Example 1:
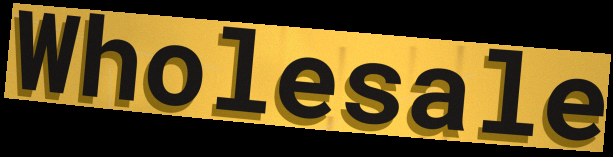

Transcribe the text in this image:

Wholesale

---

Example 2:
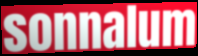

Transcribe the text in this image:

sonnalum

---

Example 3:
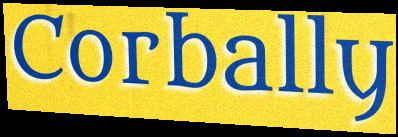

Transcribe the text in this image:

Corbally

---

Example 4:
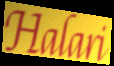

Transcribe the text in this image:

Halari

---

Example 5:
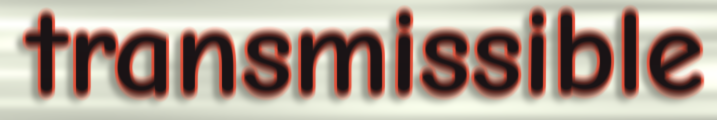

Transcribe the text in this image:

transmissible